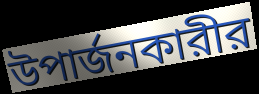
উপার্জনকারীর